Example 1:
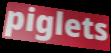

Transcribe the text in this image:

piglets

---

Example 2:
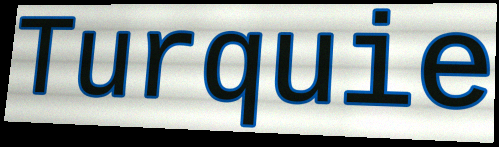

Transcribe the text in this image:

Turquie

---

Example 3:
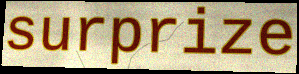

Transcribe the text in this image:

surprize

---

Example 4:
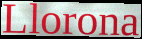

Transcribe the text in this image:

Llorona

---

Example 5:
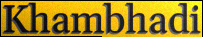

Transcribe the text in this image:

Khambhadi